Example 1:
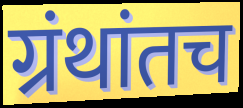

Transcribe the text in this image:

ग्रंथांतच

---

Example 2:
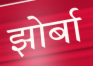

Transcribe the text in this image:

झोर्बा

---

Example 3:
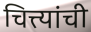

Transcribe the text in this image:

चित्त्यांची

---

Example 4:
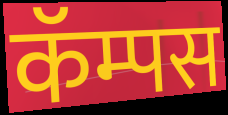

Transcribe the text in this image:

कॅम्पस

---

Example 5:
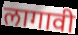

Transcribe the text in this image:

लागावी